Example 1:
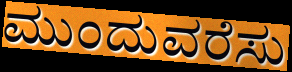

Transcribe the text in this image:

ಮುಂದುವರೆಸು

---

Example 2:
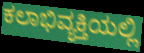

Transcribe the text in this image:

ಕಲಾಭಿವ್ಯಕ್ತಿಯಲ್ಲಿ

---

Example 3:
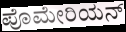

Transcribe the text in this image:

ಪೊಮೇರಿಯನ್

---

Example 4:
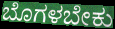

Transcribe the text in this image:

ಬೊಗಳಬೇಕು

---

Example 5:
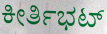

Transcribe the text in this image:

ಕೀರ್ತಿಭಟ್